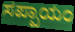
ಸಪ್ಪಾಯಂ